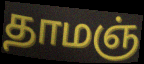
தாமஞ்